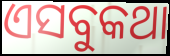
ଏସବୁକଥା